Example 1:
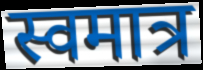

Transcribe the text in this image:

स्वमात्र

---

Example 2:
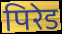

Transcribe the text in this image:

पिरेड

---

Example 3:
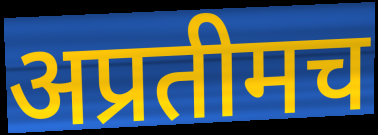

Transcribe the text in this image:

अप्रतीमच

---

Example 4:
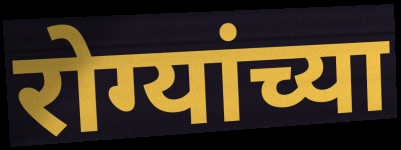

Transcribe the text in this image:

रोग्यांच्या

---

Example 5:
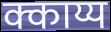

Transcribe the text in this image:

क्काय्य